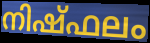
നിഷ്ഫലം